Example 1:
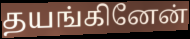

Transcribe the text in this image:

தயங்கினேன்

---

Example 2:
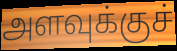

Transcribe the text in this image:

அளவுக்குச்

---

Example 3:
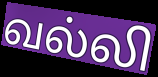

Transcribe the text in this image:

வல்லி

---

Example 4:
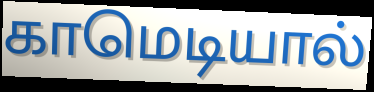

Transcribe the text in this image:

காமெடியால்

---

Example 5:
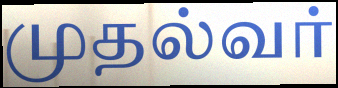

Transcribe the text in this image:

முதல்வர்